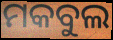
ମକବୁଲ